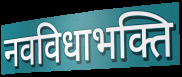
नवविधाभक्ति